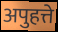
अपुहत्ते